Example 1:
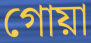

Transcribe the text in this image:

গোয়া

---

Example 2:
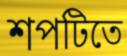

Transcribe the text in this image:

শপটিতে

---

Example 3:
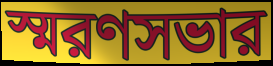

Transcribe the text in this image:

স্মরণসভার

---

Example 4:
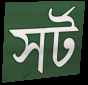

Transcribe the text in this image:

সর্ট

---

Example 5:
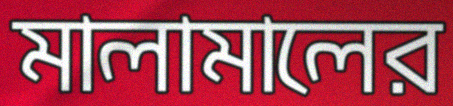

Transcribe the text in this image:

মালামালের